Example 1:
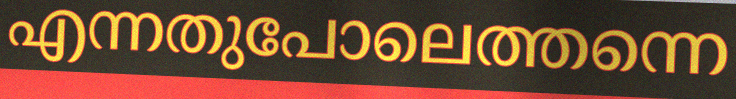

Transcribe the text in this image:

എന്നതുപോലെത്തന്നെ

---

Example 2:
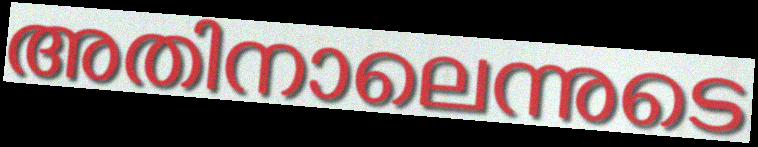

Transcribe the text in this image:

അതിനാലെന്നുടെ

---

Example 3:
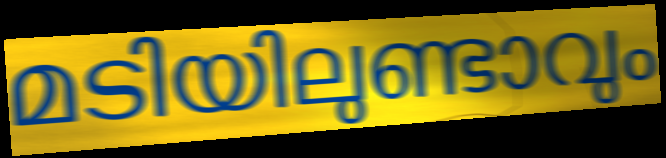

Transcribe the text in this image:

മടിയിലുണ്ടാവും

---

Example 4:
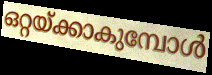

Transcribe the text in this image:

ഒറ്റയ്ക്കാകുമ്പോൾ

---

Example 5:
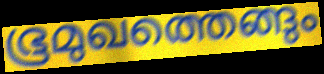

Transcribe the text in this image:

ഭൂമുഖത്തെങ്ങും